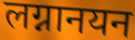
लग्नानयन